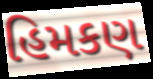
હિમકણ